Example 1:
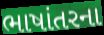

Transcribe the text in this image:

ભાષાંતરના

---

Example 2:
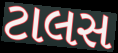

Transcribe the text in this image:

ટાલસ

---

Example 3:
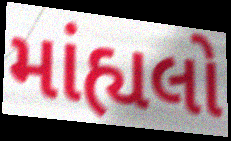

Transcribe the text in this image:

માંહ્યલો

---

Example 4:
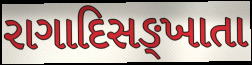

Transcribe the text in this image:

રાગાદિસઙ્ખાતા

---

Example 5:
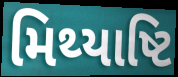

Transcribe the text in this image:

મિથ્યાષ્ટિ